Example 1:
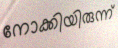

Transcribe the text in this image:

നോക്കിയിരുന്ന്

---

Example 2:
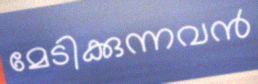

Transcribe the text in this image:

മേടിക്കുന്നവൻ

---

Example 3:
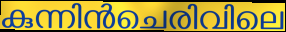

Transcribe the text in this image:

കുന്നിൻചെരിവിലെ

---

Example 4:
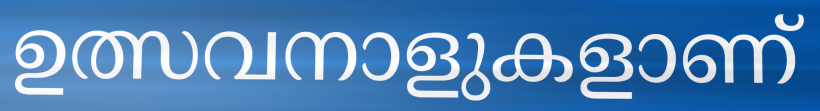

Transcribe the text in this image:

ഉത്സവനാളുകളാണ്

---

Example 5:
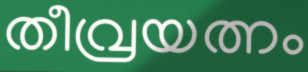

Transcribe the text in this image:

തീവ്രയത്നം